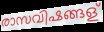
രാസവിഷങ്ങള്